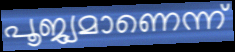
പൂജ്യമാണെന്ന്